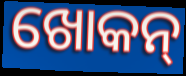
ଖୋକନ୍